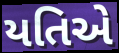
યતિએ